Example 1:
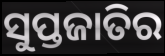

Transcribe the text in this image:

ସୁପ୍ତଜାତିର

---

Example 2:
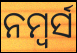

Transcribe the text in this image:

ନମ୍ୱର୍ସ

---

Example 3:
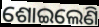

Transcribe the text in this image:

ଶୋଇଲେଣି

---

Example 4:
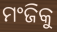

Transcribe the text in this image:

ମଂଜିକୁ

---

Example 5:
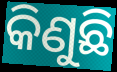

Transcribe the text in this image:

କିଣୁଛି